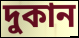
দুকান